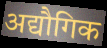
अद्यौगिक